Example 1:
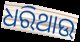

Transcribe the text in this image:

ଧରିଥାଉ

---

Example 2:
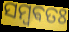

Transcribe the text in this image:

ସମ୍ବଵତଃ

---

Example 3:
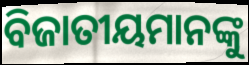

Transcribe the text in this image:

ବିଜାତୀୟମାନଙ୍କୁ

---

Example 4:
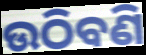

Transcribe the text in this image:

ଉଠିବଣି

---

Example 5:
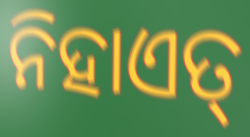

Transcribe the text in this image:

ନିହାଏତ୍